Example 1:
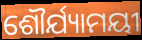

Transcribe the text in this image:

ଶୌର୍ଯ୍ୟାମୟୀ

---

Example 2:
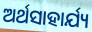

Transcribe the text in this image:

ଅର୍ଥସାହାର୍ଯ୍ୟ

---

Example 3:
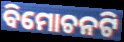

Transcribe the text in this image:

ବିମୋଚନଟି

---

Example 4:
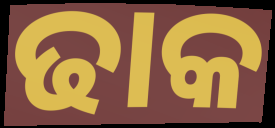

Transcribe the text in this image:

ଢାକ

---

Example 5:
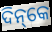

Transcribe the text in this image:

ଦିନ୍‌କେ